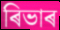
ৰিভাৰ